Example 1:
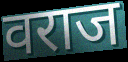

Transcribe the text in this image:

वराज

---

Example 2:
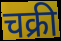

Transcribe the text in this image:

चक्री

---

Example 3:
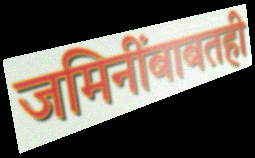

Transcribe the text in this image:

जमिनींबाबतही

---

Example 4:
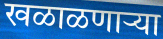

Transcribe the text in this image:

खळाळणाऱ्या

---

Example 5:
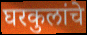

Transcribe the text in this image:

घरकुलांचे